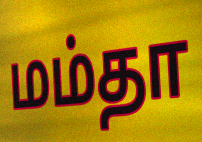
மம்தா